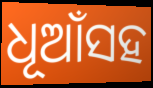
ଧୂଆଁସହ